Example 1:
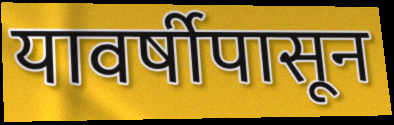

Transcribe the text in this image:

यावर्षीपासून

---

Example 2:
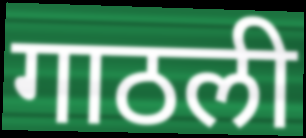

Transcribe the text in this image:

गाठली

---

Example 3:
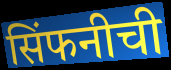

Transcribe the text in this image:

सिंफनीची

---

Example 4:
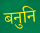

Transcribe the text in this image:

बनुनि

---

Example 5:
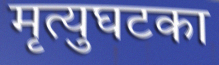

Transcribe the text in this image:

मृत्युघटका